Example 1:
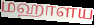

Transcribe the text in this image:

மஹாளய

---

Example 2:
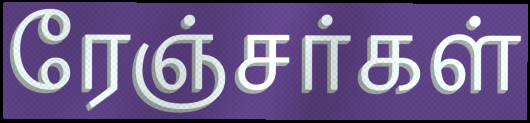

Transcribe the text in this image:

ரேஞ்சர்கள்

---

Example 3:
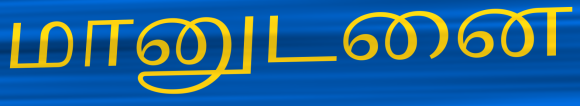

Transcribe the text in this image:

மானுடனை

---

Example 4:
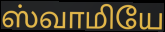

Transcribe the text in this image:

ஸ்வாமியே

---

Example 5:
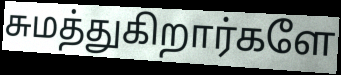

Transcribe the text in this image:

சுமத்துகிறார்களே